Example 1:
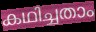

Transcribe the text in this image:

കഥിച്ചതാം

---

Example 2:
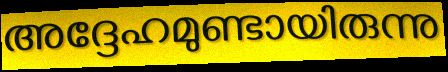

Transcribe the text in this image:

അദ്ദേഹമുണ്ടായിരുന്നു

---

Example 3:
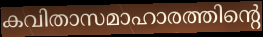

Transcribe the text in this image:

കവിതാസമാഹാരത്തിന്റെ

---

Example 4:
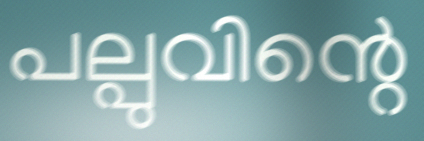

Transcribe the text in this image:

പല്പുവിന്റെ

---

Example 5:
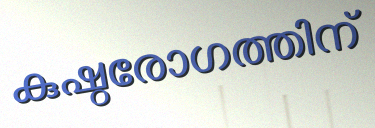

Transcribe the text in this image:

കുഷ്ഠരോഗത്തിന്